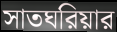
সাতঘরিয়ার